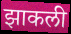
झाकली